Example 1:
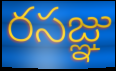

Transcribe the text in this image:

రసజ్ఞు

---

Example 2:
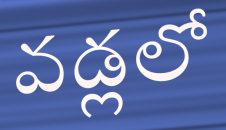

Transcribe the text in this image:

వడ్లలో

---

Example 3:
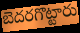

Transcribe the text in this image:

బెదరగొట్టారు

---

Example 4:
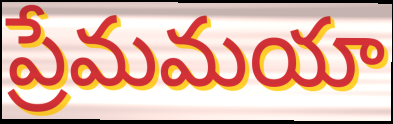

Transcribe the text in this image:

ప్రేమమయా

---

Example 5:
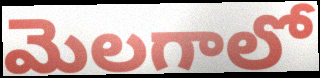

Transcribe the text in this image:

మెలగాలో